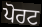
ਪੋਰਟ